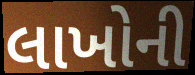
લાખોની